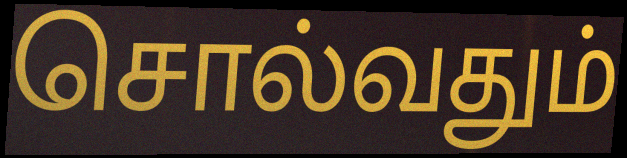
சொல்வதும்